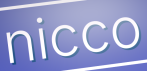
nicco